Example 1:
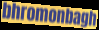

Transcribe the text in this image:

bhromonbagh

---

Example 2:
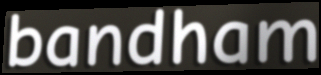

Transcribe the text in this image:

bandham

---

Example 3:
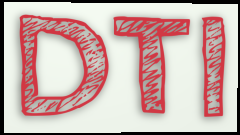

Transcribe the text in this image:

DTI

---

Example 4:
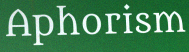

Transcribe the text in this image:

Aphorism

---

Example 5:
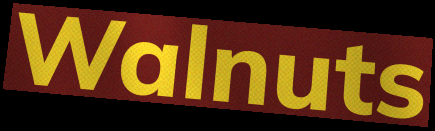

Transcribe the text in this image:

Walnuts